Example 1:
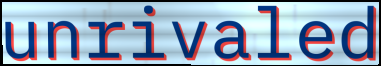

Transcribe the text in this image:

unrivaled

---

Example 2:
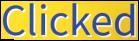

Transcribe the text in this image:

Clicked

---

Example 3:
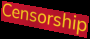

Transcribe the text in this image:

Censorship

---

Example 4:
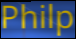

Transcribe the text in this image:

Philp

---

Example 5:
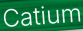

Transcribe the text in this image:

Catium